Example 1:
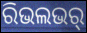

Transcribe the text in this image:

ରିଭଲଭର୍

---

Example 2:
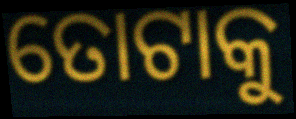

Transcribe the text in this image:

ତୋଟାକୁ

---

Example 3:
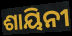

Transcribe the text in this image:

ଶାୟିନୀ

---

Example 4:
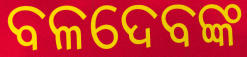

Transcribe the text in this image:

ବଳଦେବଙ୍କ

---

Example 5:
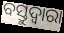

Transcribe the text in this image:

ବସ୍ତୁଦ୍ଵାରା